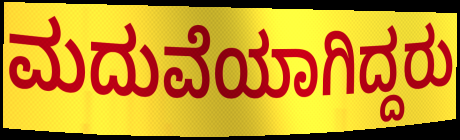
ಮದುವೆಯಾಗಿದ್ದರು